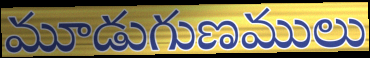
మూడుగుణములు